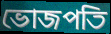
ভোজপতি